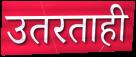
उतरताही